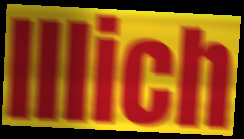
Illich